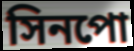
সিনপো